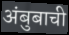
अंबुबाची